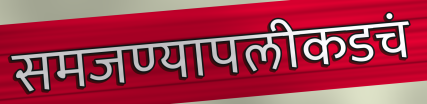
समजण्यापलीकडचं